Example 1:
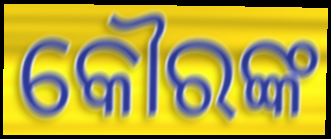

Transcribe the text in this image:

କୌରଙ୍କ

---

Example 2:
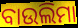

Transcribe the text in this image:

ବାଉଲିମା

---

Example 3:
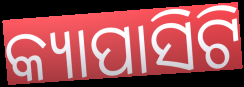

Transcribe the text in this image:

କ୍ୟାପାସିଟି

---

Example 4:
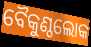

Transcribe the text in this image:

ବୈକୁଣ୍ଠଲୋକ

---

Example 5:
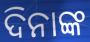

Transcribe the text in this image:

ଦିନାଙ୍କ